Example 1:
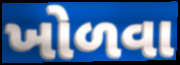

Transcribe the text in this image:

ખોળવા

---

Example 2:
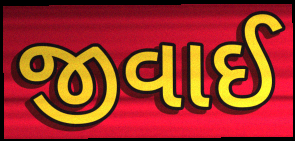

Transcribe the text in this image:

જીવાઈ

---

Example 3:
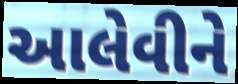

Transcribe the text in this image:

આલેવીને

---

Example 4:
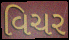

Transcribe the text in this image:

વિચર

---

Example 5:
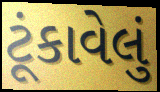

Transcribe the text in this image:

ટૂંકાવેલું